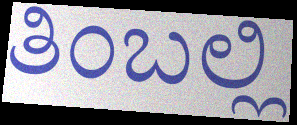
ತಿಂಬಲ್ಲಿ